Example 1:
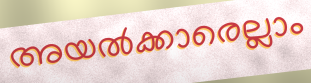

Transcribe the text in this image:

അയൽക്കാരെല്ലാം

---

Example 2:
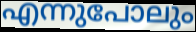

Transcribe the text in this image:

എന്നുപോലും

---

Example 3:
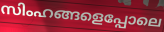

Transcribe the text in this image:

സിംഹങ്ങളെപ്പോലെ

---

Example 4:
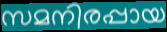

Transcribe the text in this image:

സമനിരപ്പായ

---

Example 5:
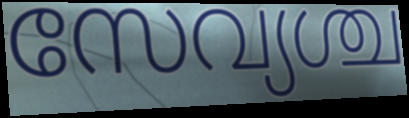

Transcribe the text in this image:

സേവ്യശ്ച